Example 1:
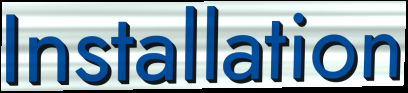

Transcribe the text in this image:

Installation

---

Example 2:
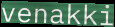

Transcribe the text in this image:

venakki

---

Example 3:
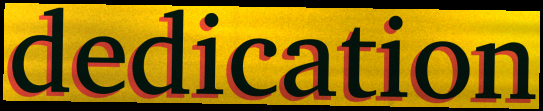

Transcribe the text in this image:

dedication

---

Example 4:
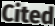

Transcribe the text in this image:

Cited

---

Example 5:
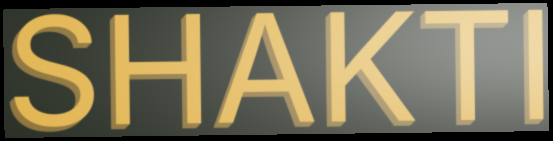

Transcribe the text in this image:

SHAKTI